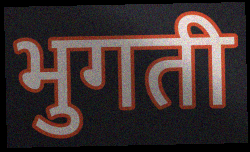
भुगती